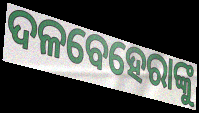
ଦଳବେହେରାଙ୍କୁ